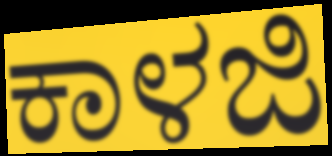
ಕಾಳಜಿ